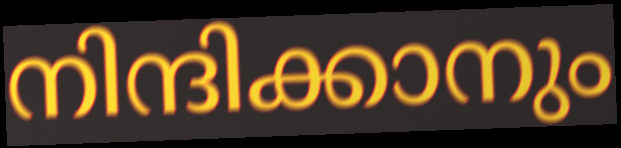
നിന്ദിക്കാനും